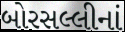
બોરસલ્લીનાં